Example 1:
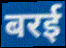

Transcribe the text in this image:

बरई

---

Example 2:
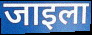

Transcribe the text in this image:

जाइला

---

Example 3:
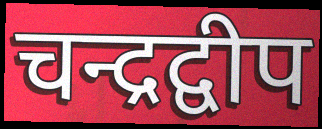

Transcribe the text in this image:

चन्द्रद्वीप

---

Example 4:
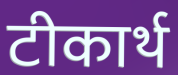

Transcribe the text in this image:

टीकार्थ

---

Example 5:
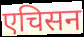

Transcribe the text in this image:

एचिसन